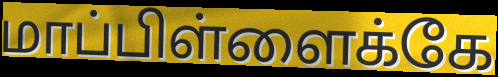
மாப்பிள்ளைக்கே